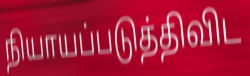
நியாயப்படுத்திவிட